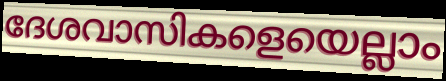
ദേശവാസികളെയെല്ലാം